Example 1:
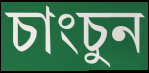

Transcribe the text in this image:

চাংচুন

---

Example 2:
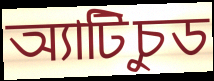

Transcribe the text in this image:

অ্যাটিচুড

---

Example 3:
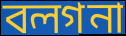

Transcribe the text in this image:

বলগনা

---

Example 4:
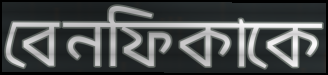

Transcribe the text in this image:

বেনফিকাকে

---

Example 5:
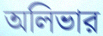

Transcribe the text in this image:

অলিভার